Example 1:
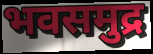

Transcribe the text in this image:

भवसमुद्र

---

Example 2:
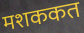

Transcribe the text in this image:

मशककत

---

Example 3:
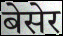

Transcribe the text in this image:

बेसेर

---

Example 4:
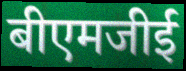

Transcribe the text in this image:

बीएमजीई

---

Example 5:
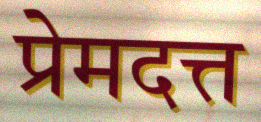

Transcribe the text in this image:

प्रेमदत्त